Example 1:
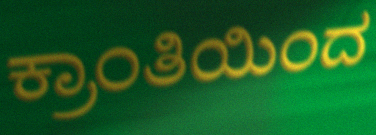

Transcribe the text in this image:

ಕ್ರಾಂತಿಯಿಂದ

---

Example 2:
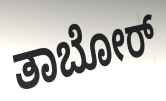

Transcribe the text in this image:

ತಾಬೋರ್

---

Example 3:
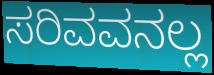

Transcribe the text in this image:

ಸರಿವವನಲ್ಲ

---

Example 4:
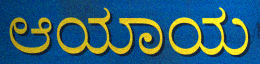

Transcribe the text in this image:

ಆಯಾಯ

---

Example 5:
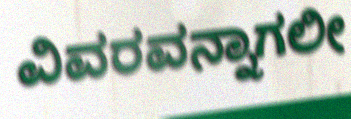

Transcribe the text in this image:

ವಿವರವನ್ನಾಗಲೀ